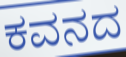
ಕವನದ